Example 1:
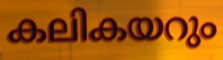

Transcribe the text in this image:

കലികയറും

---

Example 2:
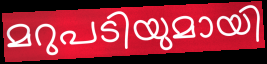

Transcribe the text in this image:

മറുപടിയുമായി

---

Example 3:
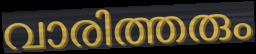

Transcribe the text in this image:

വാരിത്തരും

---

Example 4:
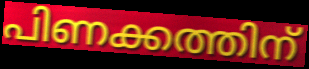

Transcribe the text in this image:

പിണക്കത്തിന്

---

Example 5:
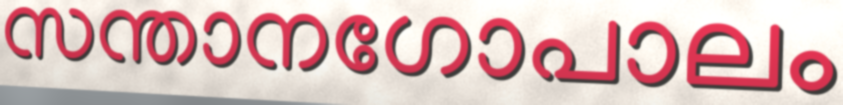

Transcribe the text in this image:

സന്താനഗോപാലം